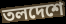
তলদেশে